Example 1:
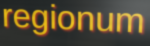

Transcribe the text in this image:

regionum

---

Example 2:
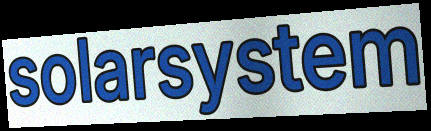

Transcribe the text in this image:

solarsystem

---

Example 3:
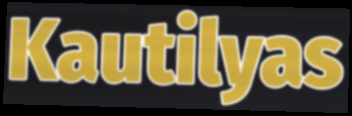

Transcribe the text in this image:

Kautilyas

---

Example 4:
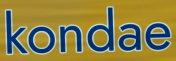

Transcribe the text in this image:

kondae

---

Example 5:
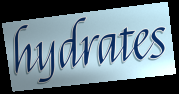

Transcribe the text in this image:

hydrates